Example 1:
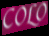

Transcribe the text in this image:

COLO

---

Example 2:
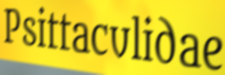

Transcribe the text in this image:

Psittaculidae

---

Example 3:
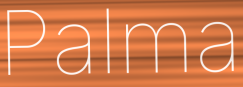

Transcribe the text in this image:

Palma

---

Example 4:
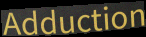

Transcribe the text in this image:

Adduction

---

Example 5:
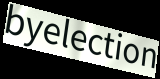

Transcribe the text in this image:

byelection